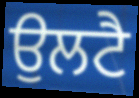
ਉਲਟੈ